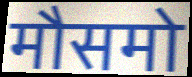
मौसमो